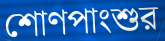
শোণপাংশুর